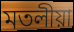
মতলীয়া